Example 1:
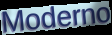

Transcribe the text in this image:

Moderno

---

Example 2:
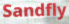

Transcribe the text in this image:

Sandfly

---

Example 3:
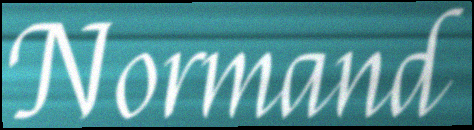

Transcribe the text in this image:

Normand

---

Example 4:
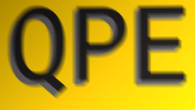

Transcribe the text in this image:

QPE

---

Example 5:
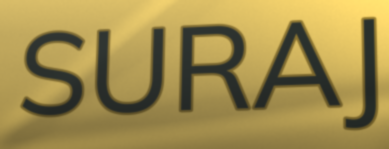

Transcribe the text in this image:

SURAJ